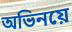
অভিনয়ে